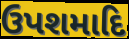
ઉપશમાદિ